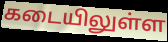
கடையிலுள்ள